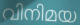
വിനിമയ